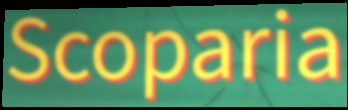
Scoparia